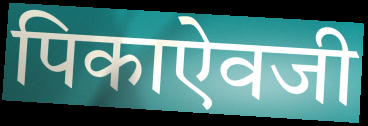
पिकाऐवजी